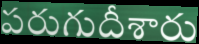
పరుగుదీశారు